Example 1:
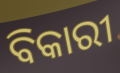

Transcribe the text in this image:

ବିକାରୀ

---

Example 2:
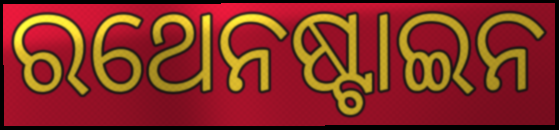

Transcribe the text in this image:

ରଥେନଷ୍ଟାଇନ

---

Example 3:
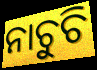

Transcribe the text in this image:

ନାଚୁଚି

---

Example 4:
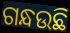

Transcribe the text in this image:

ଗନ୍ଧଉଛି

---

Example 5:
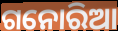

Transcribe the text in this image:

ଗନୋରିଆ